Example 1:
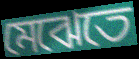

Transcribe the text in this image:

মেঝেতে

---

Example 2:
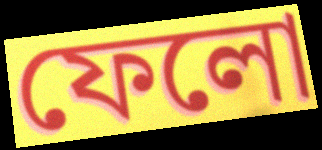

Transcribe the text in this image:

ফেলো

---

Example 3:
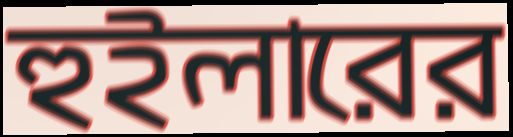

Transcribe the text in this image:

হুইলারের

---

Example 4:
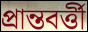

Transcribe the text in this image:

প্রান্তবর্ত্তী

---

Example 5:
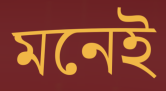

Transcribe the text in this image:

মনেই